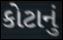
કોટાનું